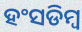
ହଂସଡିମ୍ବ